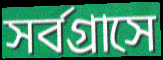
সর্বগ্রাসে